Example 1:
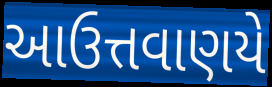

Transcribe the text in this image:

આઉત્તવાણયે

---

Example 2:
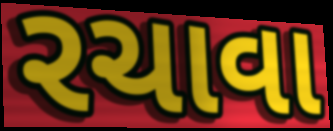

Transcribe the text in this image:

રચાવા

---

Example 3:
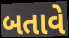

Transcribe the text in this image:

બતાવે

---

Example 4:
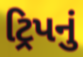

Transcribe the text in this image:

ટ્રિપનું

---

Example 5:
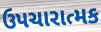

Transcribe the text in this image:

ઉપચારાત્મક